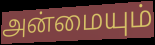
அன்மையும்